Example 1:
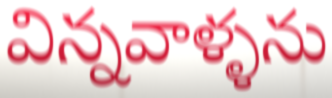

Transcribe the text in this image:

విన్నవాళ్ళను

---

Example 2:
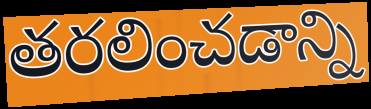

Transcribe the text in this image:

తరలించడాన్ని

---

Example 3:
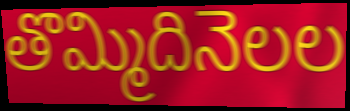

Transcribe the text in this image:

తొమ్మిదినెలల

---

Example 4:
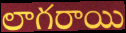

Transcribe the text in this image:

లాగరాయి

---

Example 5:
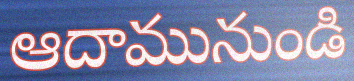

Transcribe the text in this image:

ఆదామునుండి